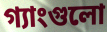
গ্যাংগুলো